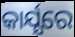
କାର୍ଯ୍ଯରେ